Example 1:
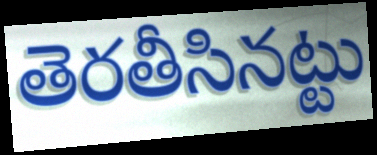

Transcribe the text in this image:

తెరతీసినట్టు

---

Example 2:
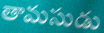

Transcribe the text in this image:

తామసుడు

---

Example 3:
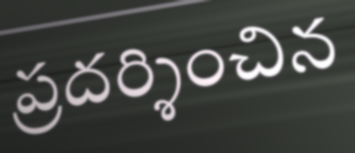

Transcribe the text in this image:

ప్రదర్శించిన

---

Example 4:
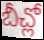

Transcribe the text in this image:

బీచ్లో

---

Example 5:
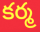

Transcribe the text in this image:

కర్మ